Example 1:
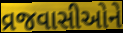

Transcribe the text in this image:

વ્રજવાસીઓને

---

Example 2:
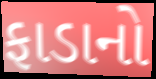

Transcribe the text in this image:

ફાડાનો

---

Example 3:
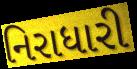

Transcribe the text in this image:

નિરાધારી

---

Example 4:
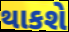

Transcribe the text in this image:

થાકશે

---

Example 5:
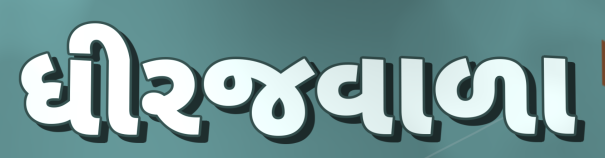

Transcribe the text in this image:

ધીરજવાળા